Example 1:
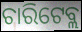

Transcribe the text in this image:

ଚାରିଟେବ୍ଲ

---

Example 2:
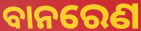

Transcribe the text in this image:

ବାନରେଣ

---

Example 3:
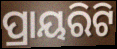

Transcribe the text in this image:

ପ୍ରାୟରିଟି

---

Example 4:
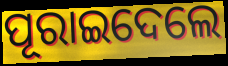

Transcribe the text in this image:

ପୂରାଇଦେଲେ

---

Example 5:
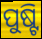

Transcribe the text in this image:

ପୁଷ୍ଟି